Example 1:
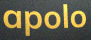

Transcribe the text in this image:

apolo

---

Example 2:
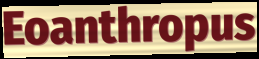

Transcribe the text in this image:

Eoanthropus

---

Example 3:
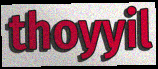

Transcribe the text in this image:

thoyyil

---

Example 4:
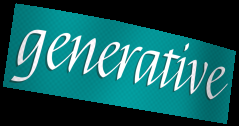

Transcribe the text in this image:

generative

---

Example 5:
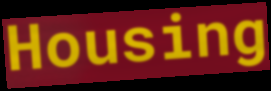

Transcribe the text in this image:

Housing